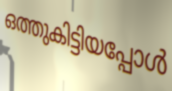
ഒത്തുകിട്ടിയപ്പോൾ